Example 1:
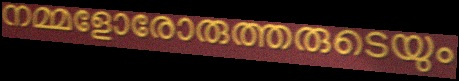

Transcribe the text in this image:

നമ്മളോരോരുത്തരുടെയും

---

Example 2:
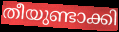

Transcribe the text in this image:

തീയുണ്ടാക്കി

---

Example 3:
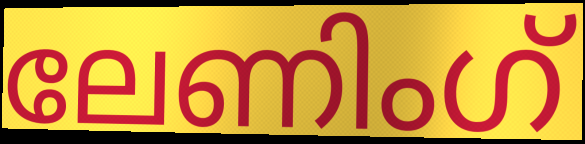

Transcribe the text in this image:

ലേണിംഗ്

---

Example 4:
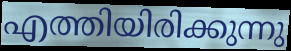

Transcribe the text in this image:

എത്തിയിരിക്കുന്നു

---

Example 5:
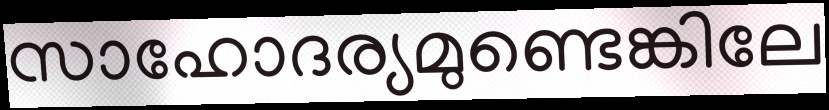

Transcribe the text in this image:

സാഹോദര്യമുണ്ടെങ്കിലേ